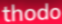
thodo